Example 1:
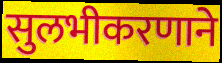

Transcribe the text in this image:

सुलभीकरणाने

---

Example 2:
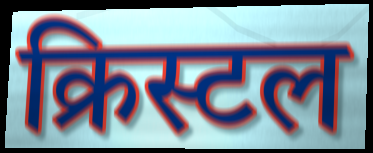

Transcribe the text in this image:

क्रिस्टल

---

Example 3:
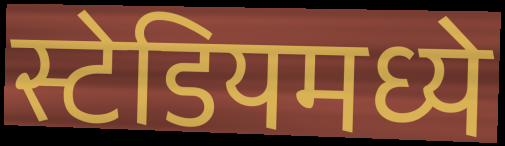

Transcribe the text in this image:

स्टेडियमध्ये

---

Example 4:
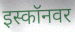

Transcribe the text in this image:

इस्कॉनवर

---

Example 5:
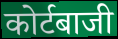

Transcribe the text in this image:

कोर्टबाजी